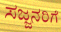
ಸಜ್ಜನರಿಗೆ